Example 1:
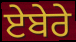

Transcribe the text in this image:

ਏਬੇਰੇ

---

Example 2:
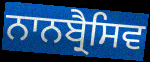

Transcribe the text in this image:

ਨਾਨਬ੍ਰੈਸਿਵ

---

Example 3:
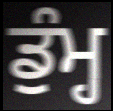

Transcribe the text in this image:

ਡੁੰਮ੍ਹ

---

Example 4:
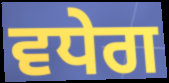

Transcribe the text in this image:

ਵਧੇਗ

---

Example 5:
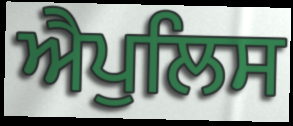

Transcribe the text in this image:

ਐਪੁਲਿਸ